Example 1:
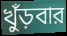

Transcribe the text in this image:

খুঁড়বার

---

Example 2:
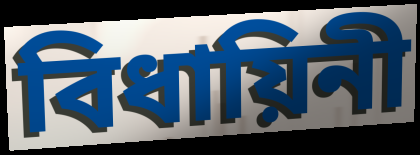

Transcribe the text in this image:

বিধায়িনী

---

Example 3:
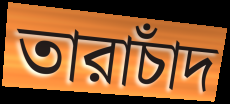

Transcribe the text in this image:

তারাচাঁদ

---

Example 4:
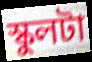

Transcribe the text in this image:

স্কুলটা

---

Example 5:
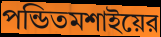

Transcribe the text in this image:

পন্ডিতমশাইয়ের